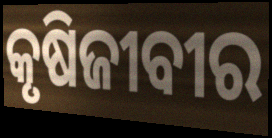
କୃଷିଜୀବୀର